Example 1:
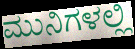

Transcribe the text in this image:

ಮುನಿಗಳಲ್ಲಿ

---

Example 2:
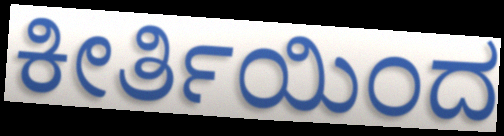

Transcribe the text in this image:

ಕೀರ್ತಿಯಿಂದ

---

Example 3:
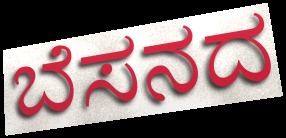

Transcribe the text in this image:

ಬೆಸನದ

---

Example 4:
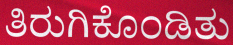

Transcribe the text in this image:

ತಿರುಗಿಕೊಂಡಿತು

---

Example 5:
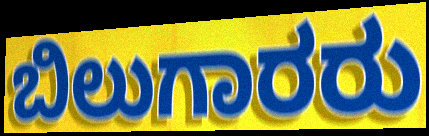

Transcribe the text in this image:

ಬಿಲುಗಾರರು